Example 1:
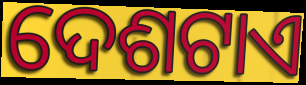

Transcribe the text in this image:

ଦେଶଟାଏ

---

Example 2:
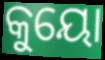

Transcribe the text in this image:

କୁୟୋ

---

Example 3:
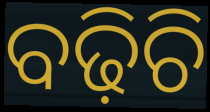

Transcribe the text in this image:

ବଢ଼ିଚି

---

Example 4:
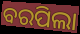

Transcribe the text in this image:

ବରପିଲା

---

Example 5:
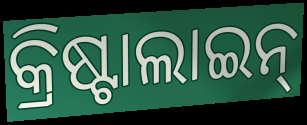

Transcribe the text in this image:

କ୍ରିଷ୍ଟାଲାଇନ୍